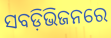
ସବଡ଼ିଭିଜନରେ